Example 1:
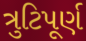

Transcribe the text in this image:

ત્રુટિપૂર્ણ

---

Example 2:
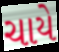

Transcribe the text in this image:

ચાયે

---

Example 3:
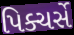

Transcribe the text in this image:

પિક્ચર્સે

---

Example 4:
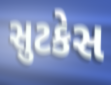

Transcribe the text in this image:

સુટકેસ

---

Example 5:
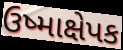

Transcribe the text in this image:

ઉષ્માક્ષેપક